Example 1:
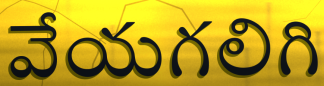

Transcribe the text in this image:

వేయగలిగి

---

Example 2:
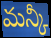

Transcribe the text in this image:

మన్కీ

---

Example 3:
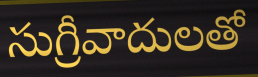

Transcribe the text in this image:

సుగ్రీవాదులతో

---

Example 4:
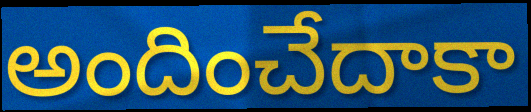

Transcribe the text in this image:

అందించేదాకా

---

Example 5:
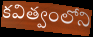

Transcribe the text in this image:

కవిత్వంలోని